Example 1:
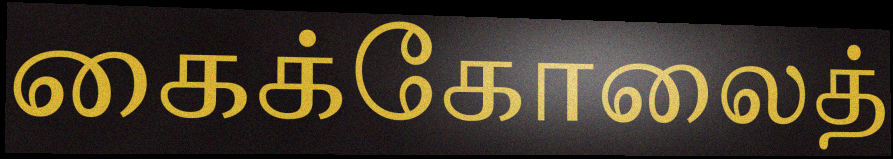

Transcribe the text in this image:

கைக்கோலைத்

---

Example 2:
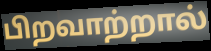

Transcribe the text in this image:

பிறவாற்றால்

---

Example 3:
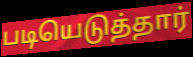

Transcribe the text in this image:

படியெடுத்தார்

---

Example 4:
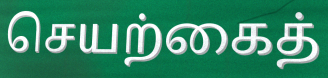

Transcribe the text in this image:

செயற்கைத்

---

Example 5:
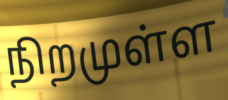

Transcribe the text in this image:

நிறமுள்ள